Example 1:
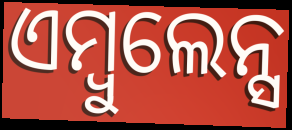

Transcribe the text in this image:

ଏମ୍ବୁଲେନ୍ସ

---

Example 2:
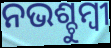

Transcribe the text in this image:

ନଭଶ୍ଚୁମ୍ବୀ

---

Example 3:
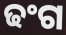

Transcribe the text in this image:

ଢଂଗ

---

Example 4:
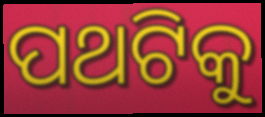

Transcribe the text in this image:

ପଥଟିକୁ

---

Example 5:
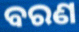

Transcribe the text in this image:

ବରଣ